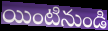
యింటినుండి